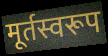
मूर्तस्वरूप